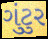
ગુંટુર